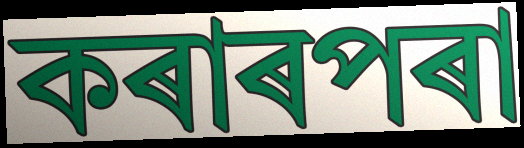
কৰাৰপৰা